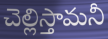
చెల్లిస్తామనీ